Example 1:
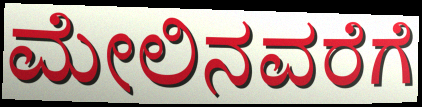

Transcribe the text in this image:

ಮೇಲಿನವರೆಗೆ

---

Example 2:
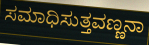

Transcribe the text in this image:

ಸಮಾಧಿಸುತ್ತವಣ್ಣನಾ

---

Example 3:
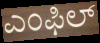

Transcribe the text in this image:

ಎಂಫಿಲ್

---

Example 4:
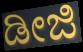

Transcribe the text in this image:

ಡೀಜಿ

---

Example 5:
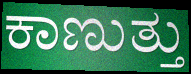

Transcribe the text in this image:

ಕಾಣುತ್ತು